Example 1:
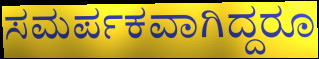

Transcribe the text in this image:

ಸಮರ್ಪಕವಾಗಿದ್ದರೂ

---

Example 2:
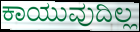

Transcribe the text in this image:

ಕಾಯುವುದಿಲ್ಲ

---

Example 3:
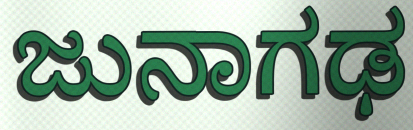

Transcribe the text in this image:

ಜುನಾಗಢ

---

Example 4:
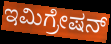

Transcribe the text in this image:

ಇಮಿಗ್ರೇಷನ್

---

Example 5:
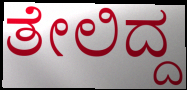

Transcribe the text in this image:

ತೇಲಿದ್ದ